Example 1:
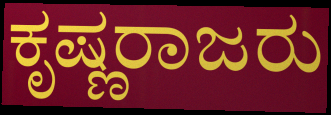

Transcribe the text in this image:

ಕೃಷ್ಣರಾಜರು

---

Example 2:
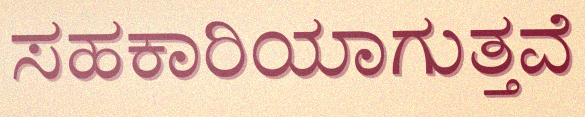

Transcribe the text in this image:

ಸಹಕಾರಿಯಾಗುತ್ತವೆ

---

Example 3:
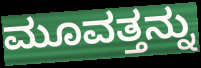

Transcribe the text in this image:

ಮೂವತ್ತನ್ನು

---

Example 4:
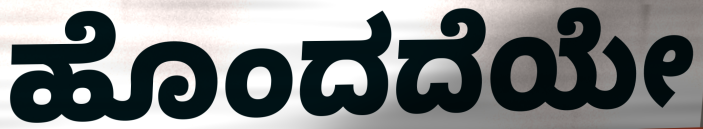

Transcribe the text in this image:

ಹೊಂದದೆಯೇ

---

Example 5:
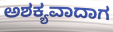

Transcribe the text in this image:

ಅಶಕ್ಯವಾದಾಗ